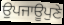
ਉਪਜਾਊਪੁਣੇ